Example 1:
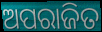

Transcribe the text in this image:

ଅପରାଜିତ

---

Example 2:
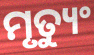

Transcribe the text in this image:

ମୃତ୍ୟୁଂ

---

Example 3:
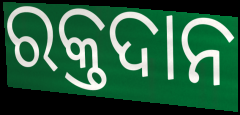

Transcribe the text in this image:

ରକ୍ତଦାନ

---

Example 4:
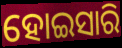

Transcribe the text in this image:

ହୋଇସାରି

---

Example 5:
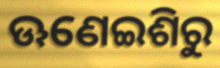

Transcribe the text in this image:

ଊଣେଇଶିରୁ